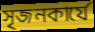
সৃজনকার্যে